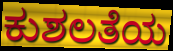
ಕುಶಲತೆಯ